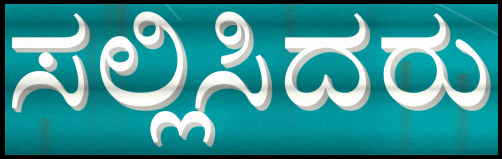
ಸಲ್ಲಿಸಿದರು